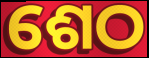
ଶେଠ